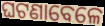
ଘଟଣାବେଳେ